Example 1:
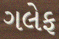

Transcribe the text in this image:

ગલેફ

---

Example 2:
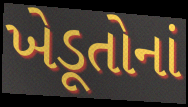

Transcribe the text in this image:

ખેડૂતોનાં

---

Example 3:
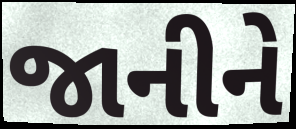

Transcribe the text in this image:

જાનીને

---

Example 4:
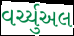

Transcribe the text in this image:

વર્ચ્યુઅલ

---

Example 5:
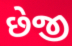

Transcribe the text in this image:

છેજી